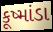
કૂષ્માંડા